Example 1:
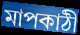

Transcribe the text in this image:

মাপকাঠী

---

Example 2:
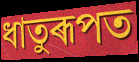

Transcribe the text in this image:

ধাতুৰূপত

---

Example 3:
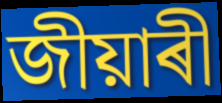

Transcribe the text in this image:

জীয়াৰী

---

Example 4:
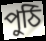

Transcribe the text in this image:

পুঠি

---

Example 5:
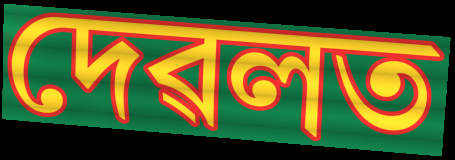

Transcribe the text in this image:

দেৱলত